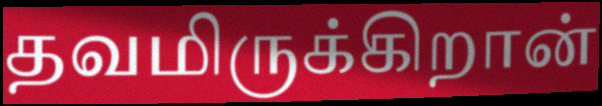
தவமிருக்கிறான்